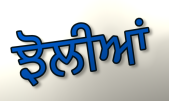
ਝੋਲੀਆਂ